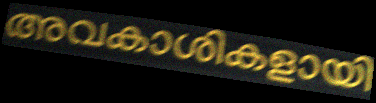
അവകാശികളായി